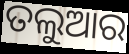
ତଲୁଆର